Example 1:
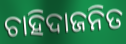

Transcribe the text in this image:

ଚାହିଦାଜନିତ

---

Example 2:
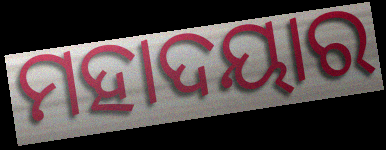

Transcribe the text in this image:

ମହାଦୟାର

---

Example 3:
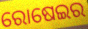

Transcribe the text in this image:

ରୋଷେଇର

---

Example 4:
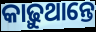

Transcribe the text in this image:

କାଢ଼ୁଥାନ୍ତେ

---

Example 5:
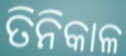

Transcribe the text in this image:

ତିନିକାଳ